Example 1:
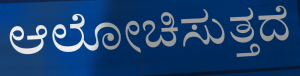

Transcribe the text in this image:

ಆಲೋಚಿಸುತ್ತದೆ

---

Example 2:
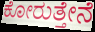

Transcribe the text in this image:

ಕೋರುತ್ತೇನೆ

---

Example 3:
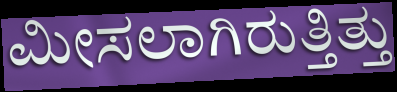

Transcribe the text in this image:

ಮೀಸಲಾಗಿರುತ್ತಿತ್ತು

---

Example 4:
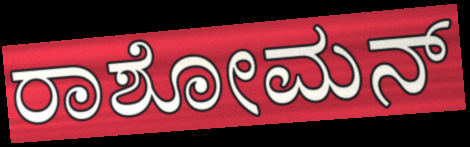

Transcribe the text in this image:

ರಾಶೋಮನ್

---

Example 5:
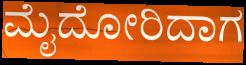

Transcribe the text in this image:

ಮೈದೋರಿದಾಗ